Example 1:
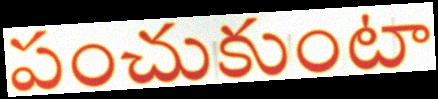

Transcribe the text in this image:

పంచుకుంటా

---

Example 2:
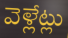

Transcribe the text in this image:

వెళ్లేట్లు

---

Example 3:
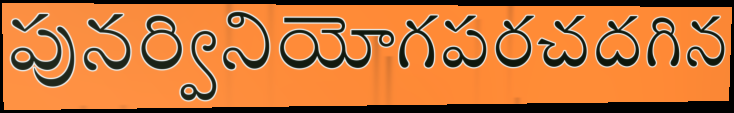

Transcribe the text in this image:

పునర్వినియోగపరచదగిన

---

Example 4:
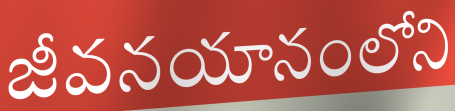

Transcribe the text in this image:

జీవనయానంలోని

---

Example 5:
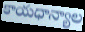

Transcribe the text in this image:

కాయధాన్యాల